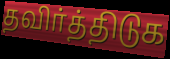
தவிர்த்திடுக